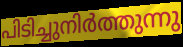
പിടിച്ചുനിർത്തുന്നു